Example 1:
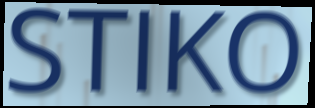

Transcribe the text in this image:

STIKO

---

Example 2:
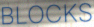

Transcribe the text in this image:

BLOCKS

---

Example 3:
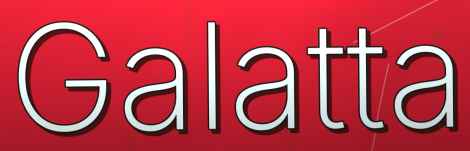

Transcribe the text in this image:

Galatta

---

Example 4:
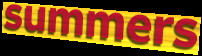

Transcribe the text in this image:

summers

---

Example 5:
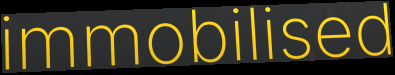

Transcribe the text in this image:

immobilised